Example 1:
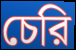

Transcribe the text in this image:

চেরি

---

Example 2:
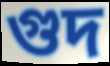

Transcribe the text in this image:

গুদ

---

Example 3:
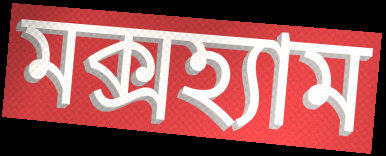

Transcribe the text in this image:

মক্সহ্যাম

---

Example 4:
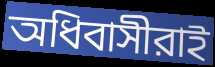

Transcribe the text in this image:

অধিবাসীরাই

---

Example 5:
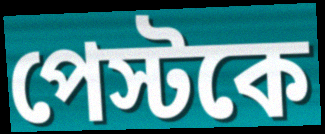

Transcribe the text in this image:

পেস্টকে